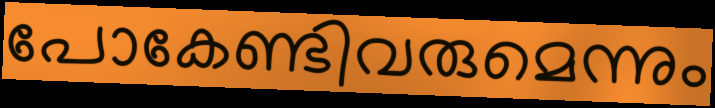
പോകേണ്ടിവരുമെന്നും